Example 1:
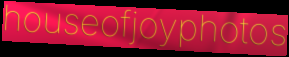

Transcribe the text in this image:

houseofjoyphotos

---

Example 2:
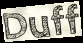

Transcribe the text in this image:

Duff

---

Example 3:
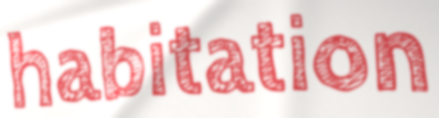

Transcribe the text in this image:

habitation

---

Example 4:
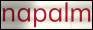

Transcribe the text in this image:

napalm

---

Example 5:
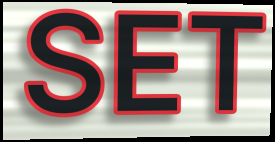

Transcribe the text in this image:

SET